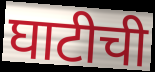
घाटीची